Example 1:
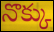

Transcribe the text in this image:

నొక్కు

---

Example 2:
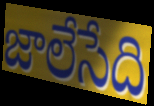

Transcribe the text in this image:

జాలేసేది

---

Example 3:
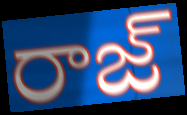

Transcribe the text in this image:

రాజ్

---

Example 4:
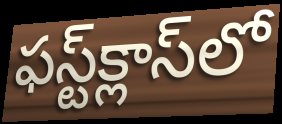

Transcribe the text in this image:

ఫస్ట్‌క్లాస్‌లో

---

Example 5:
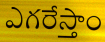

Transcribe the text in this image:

ఎగరేస్తాం